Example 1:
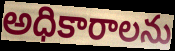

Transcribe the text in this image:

అధికారాలను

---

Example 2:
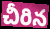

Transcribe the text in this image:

చీరిన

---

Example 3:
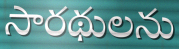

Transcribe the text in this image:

సారథులను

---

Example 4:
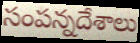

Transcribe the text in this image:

సంపన్నదేశాలు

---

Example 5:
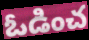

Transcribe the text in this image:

ఓడించ